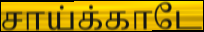
சாய்க்காடே